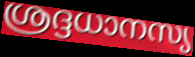
ശ്രദ്ദധാനസ്യ